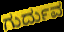
ಗುರ್ದುವ